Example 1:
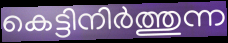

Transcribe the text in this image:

കെട്ടിനിർത്തുന്ന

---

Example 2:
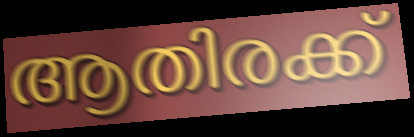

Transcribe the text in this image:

ആതിരക്ക്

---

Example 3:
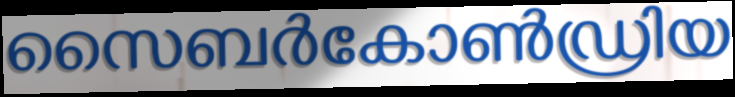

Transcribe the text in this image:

സൈബർകോൺഡ്രിയ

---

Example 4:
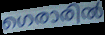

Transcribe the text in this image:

ഗെരാരിൽ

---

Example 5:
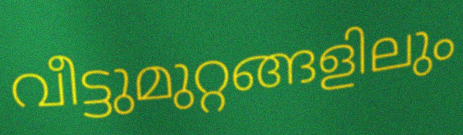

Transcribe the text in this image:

വീട്ടുമുറ്റങ്ങളിലും